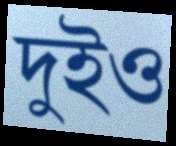
দুইও